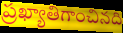
ప్రఖ్యాతిగాంచినది